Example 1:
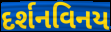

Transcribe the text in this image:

દર્શનવિનય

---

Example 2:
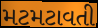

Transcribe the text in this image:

મટમટાવતી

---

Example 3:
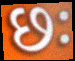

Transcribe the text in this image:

છઃ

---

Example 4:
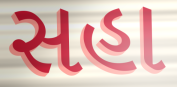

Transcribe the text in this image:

સહા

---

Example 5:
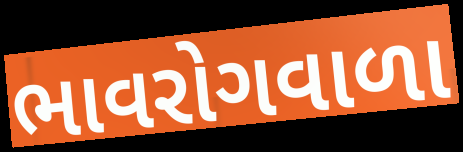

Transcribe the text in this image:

ભાવરોગવાળા